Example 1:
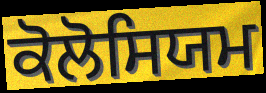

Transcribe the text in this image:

ਕੋਲੋਸਿਯਮ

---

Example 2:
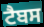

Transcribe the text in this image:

ਟੈਬਸ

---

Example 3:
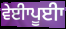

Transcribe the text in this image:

ਵੇਈਾਪੂਈਾ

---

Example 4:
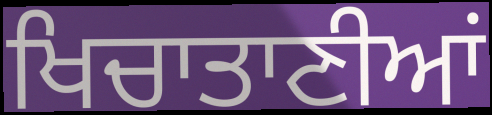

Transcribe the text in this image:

ਖਿਚਾਤਾਣੀਆਂ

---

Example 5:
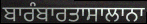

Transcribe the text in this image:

ਬਾਰੰਬਾਰਤਾਸਾਲਾਨਾ